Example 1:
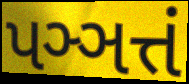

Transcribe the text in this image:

પઞ્ઞત્તં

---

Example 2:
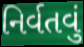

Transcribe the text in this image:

નિર્વતવું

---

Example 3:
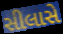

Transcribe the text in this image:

સીલાસે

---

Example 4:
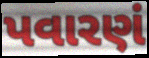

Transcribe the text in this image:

પવારણં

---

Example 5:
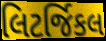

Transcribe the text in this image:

લિટર્જિકલ